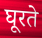
घूरते